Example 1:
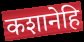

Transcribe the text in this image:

कशानेहि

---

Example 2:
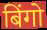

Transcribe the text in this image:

बिंगो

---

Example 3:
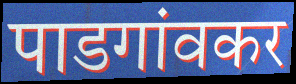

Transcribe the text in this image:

पाडगांवकर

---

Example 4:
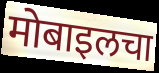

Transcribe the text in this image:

मोबाइलचा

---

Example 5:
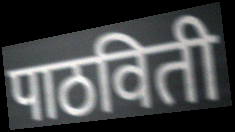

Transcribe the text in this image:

पाठविती